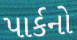
પાર્કનો